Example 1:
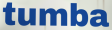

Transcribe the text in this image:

tumba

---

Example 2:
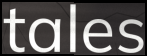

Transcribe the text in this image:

tales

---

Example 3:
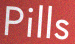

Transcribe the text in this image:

Pills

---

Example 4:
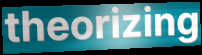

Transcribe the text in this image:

theorizing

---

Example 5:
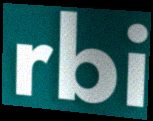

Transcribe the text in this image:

rbi